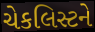
ચેકલિસ્ટને